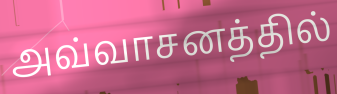
அவ்வாசனத்தில்